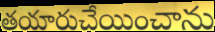
తయారుచేయించాను